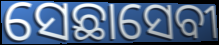
ସେଛାସେବୀ